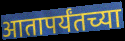
आतापर्यंतच्या